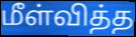
மீள்வித்த